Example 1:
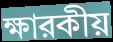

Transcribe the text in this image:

ক্ষারকীয়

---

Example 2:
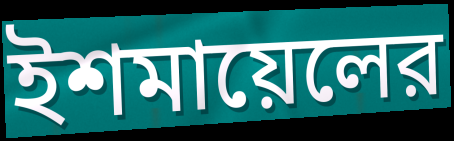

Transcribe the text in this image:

ইশমায়েলের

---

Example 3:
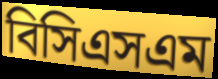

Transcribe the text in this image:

বিসিএসএম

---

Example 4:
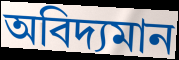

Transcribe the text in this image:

অবিদ্যমান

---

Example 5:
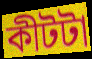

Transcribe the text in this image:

কীটটা